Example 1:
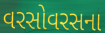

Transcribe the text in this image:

વરસોવરસના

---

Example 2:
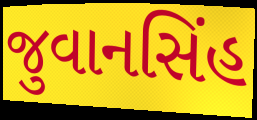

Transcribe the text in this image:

જુવાનસિંહ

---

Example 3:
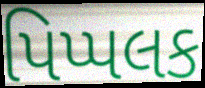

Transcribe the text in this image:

પિપ્પલક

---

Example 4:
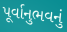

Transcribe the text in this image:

પૂર્વાનુભવનું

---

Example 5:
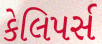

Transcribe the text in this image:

કેલિપર્સ